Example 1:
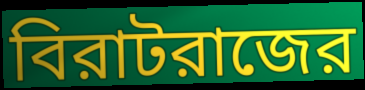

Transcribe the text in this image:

বিরাটরাজের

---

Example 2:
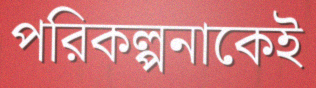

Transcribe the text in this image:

পরিকল্পনাকেই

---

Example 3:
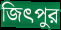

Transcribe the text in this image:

জিৎপুর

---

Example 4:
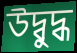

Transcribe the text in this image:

উদ্বুদ্ধ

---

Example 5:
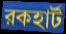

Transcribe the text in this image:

রকহার্ট